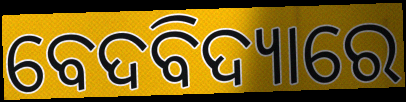
ବେଦବିଦ୍ୟାରେ